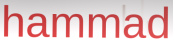
hammad